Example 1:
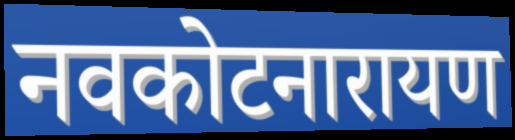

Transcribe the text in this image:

नवकोटनारायण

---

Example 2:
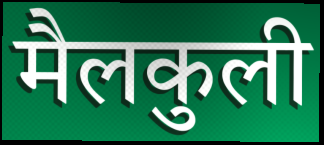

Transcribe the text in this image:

मैलकुली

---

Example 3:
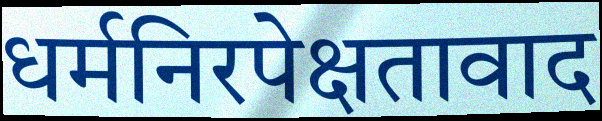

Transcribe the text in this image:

धर्मनिरपेक्षतावाद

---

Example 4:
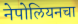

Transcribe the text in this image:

नेपोलियनचा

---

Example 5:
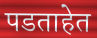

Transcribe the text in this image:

पडताहेत